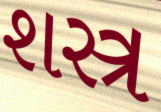
શસ્ત્ર